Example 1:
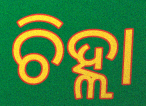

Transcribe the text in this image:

ଚିହ୍ଲା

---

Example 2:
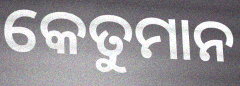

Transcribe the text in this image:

କେତୁମାନ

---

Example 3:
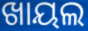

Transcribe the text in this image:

ଖାୟଲ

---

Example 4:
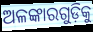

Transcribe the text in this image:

ଅଳଙ୍କାରଗୁଡ଼ିକୁ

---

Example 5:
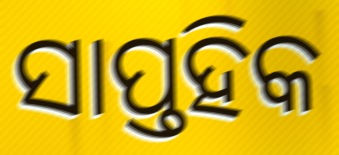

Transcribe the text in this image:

ସାପ୍ତହିକ